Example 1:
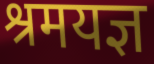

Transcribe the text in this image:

श्रमयज्ञ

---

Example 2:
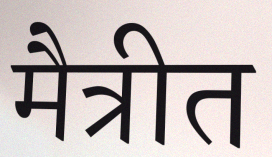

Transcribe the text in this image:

मैत्रीत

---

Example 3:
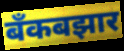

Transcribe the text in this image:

बँकबझार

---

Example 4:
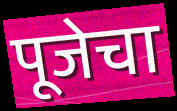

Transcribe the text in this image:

पूजेचा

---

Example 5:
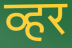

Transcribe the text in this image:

व्हर